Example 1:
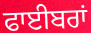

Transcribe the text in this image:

ਫਾਈਬਰਾਂ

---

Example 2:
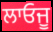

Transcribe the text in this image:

ਲਾਓਜੂ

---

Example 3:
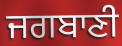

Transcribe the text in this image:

ਜਗਬਾਣੀ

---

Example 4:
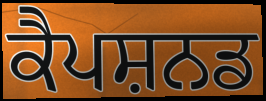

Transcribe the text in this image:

ਕੈਪਸ਼ਨਡ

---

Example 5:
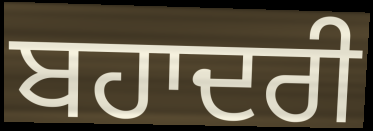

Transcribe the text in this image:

ਬਹਾਦਰੀ